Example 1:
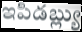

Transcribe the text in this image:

ఇపిడబ్ల్యు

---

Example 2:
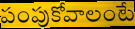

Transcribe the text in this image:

పంపుకోవాలంటే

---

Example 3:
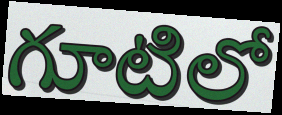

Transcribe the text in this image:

గూటిలో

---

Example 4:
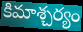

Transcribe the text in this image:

కిమాశ్చర్యం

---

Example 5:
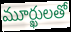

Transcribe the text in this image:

మూర్ఖులతో